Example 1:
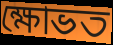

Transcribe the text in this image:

ক্ষোভত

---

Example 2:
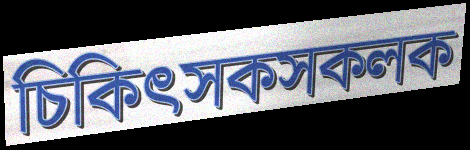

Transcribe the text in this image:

চিকিৎসকসকলক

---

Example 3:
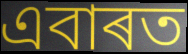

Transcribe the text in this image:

এবাৰত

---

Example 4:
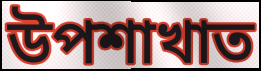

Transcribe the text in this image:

উপশাখাত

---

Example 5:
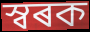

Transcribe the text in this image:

স্বৰক